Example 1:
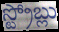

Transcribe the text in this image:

స్ట్రోబ్లు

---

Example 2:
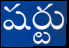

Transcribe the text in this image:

షర్టు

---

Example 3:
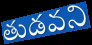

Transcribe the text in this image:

తుడవని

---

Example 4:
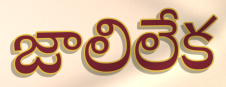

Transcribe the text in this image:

జాలిలేక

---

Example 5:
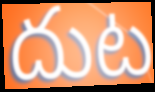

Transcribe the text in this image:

దుట